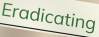
Eradicating